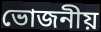
ভোজনীয়